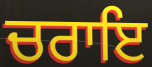
ਚਰਾਇ